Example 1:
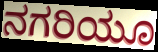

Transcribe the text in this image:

ನಗರಿಯೂ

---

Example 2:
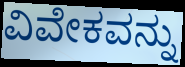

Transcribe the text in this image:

ವಿವೇಕವನ್ನು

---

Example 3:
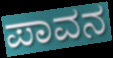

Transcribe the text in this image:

ಪಾವನ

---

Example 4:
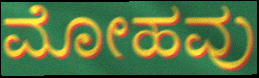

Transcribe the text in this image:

ಮೋಹವು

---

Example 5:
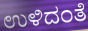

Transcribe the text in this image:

ಉಳಿದಂತೆ